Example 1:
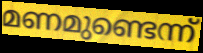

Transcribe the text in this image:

മണമുണ്ടെന്ന്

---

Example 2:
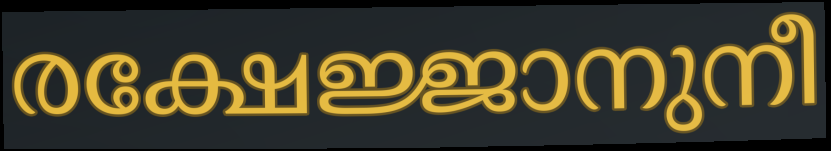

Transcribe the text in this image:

രക്ഷേജ്ജാനുനീ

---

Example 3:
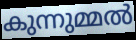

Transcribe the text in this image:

കുന്നുമ്മൽ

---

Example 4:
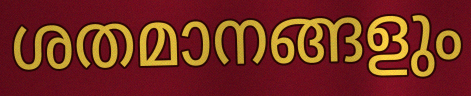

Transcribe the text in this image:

ശതമാനങ്ങളും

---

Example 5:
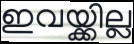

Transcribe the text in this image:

ഇവയ്ക്കില്ല